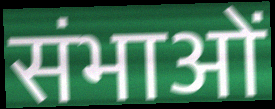
संभाओं